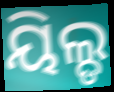
ୟିଲ୍ଡ